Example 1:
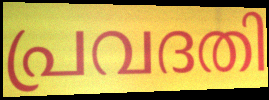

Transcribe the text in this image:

പ്രവദതി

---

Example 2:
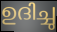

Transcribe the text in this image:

ഉദിച്ചു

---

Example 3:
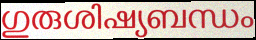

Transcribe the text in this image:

ഗുരുശിഷ്യബന്ധം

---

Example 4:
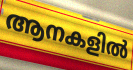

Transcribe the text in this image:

ആനകളിൽ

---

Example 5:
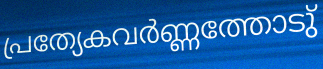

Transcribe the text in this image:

പ്രത്യേകവർണ്ണത്തോടു്